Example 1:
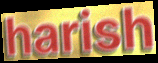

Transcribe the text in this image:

harish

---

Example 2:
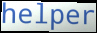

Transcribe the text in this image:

helper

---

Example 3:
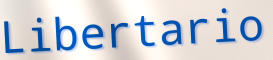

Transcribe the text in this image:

Libertario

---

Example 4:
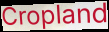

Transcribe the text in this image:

Cropland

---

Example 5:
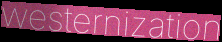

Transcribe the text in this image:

westernization